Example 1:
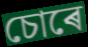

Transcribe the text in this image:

চোৰে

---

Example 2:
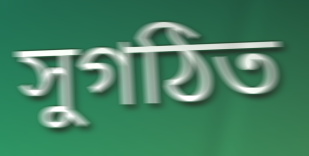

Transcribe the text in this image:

সুগঠিত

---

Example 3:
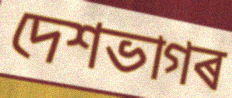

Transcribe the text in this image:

দেশভাগৰ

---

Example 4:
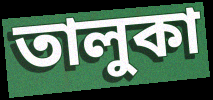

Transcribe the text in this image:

তালুকা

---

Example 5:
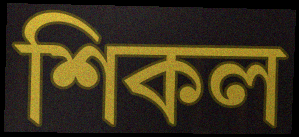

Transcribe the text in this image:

শিকল